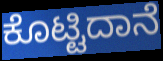
ಕೊಟ್ಟಿದಾನೆ